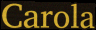
Carola